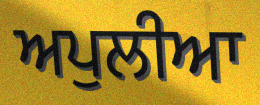
ਅਪੁਲੀਆ